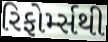
રિફોર્મ્સથી